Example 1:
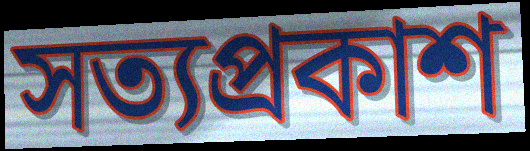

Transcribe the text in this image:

সত্যপ্ৰকাশ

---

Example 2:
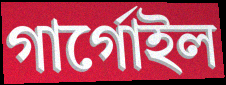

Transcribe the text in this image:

গাৰ্গোইল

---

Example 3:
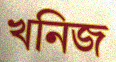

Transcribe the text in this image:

খনিজ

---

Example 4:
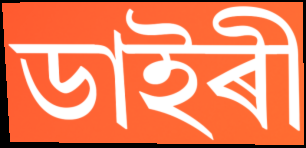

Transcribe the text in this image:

ডাইৰী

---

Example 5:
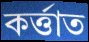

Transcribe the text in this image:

কৰ্ত্তাত